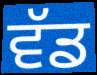
ਵੱਡ